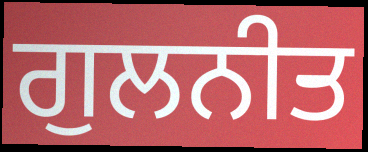
ਗੁਲਨੀਤ